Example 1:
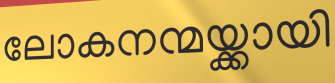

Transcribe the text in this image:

ലോകനന്മയ്ക്കായി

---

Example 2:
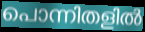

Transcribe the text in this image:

പൊന്നിതളിൽ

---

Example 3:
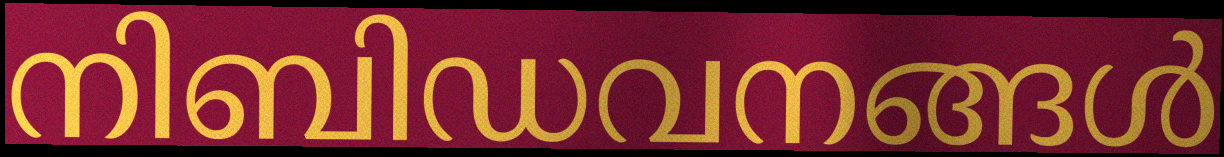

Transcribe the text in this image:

നിബിഡവനങ്ങൾ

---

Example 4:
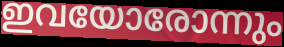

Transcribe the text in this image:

ഇവയോരോന്നും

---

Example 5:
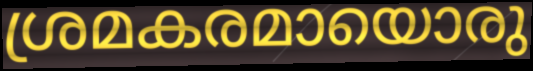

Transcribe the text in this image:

ശ്രമകരമായൊരു